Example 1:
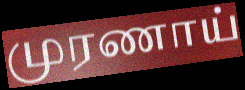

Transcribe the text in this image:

முரணாய்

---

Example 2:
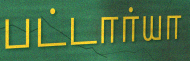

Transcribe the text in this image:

பட்டார்யா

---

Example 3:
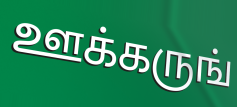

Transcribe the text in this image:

ஊக்கருங்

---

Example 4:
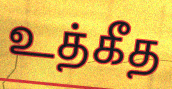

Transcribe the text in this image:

உத்கீத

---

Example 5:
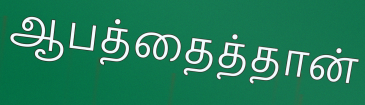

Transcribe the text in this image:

ஆபத்தைத்தான்